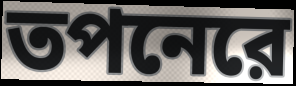
তপনেরে